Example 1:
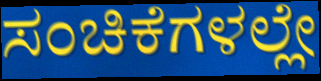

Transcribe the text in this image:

ಸಂಚಿಕೆಗಳಲ್ಲೇ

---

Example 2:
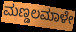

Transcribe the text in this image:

ಮಣ್ಡಲಮಾಳೇ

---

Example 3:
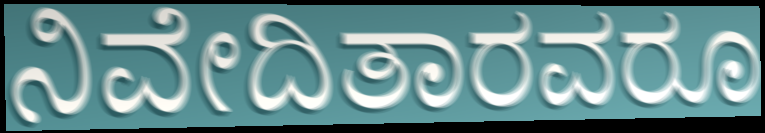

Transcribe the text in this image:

ನಿವೇದಿತಾರವರೂ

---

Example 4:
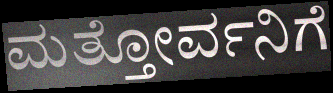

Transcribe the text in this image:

ಮತ್ತೋರ್ವನಿಗೆ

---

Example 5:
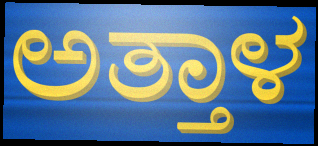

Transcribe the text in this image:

ಅತ್ತಾಳ